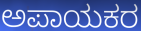
ಅಪಾಯಕರ